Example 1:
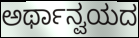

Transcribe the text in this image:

ಅರ್ಥಾನ್ವಯದ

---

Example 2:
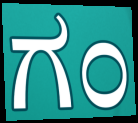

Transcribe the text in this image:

ಗಂ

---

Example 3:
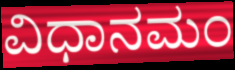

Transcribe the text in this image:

ವಿಧಾನಮಂ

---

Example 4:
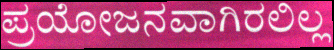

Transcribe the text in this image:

ಪ್ರಯೋಜನವಾಗಿರಲಿಲ್ಲ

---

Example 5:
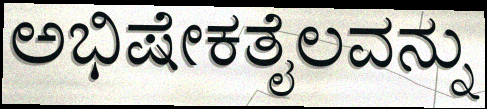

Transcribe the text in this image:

ಅಭಿಷೇಕತೈಲವನ್ನು